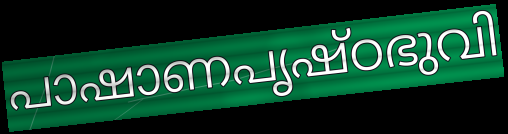
പാഷാണപൃഷ്ഠഭുവി